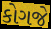
કોગજે